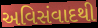
અવિસંવાદથી